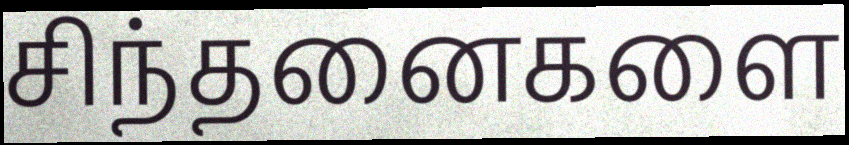
சிந்தனைகளை